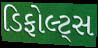
ડિફોલ્ટ્સ